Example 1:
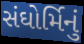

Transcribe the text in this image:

સંઘોર્મિનું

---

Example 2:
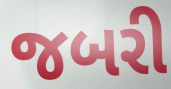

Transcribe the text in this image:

જબરી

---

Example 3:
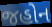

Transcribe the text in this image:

જહોન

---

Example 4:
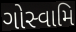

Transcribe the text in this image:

ગોસ્વામિ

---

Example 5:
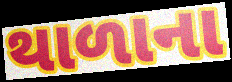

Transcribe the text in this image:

થાળાના